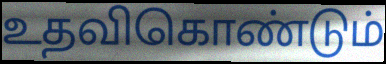
உதவிகொண்டும்